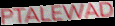
PTALEWAD